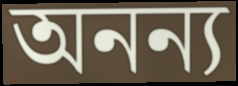
অনন্য